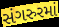
સંગરુરમાં